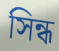
সিন্ধ